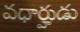
వధార్హుడు